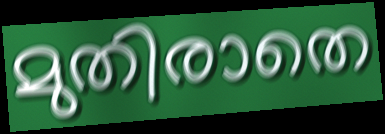
മുതിരാതെ